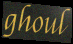
ghoul